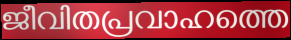
ജീവിതപ്രവാഹത്തെ